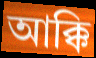
আক্কি